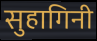
सुहागिनी